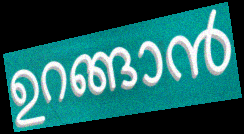
ഉറങ്ങാൻ